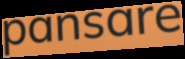
pansare